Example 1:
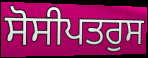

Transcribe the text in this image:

ਸੋਸੀਪਤਰੁਸ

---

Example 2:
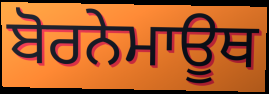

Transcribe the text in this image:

ਬੋਰਨੇਮਾਊਥ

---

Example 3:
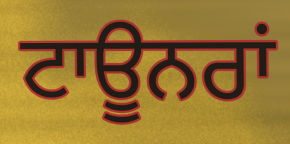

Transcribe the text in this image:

ਟਾਊਨਰਾਂ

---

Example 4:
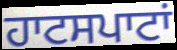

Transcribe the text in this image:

ਹਾਟਸਪਾਟਾਂ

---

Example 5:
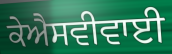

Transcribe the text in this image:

ਕੇਐਸਵੀਵਾਈ